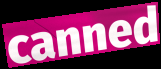
canned